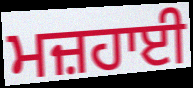
ਮਜ਼ਹਾਈ